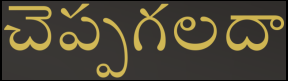
చెప్పగలదా